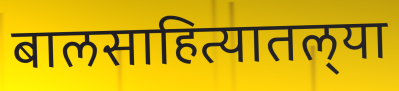
बालसाहित्यातल्या